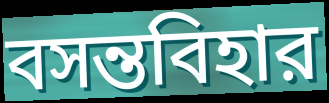
বসন্তবিহার